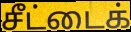
சீட்டைக்